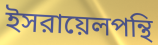
ইসরায়েলপন্থি